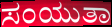
ಸಂಯುತಾ